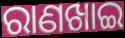
ରାଣଖାଇ